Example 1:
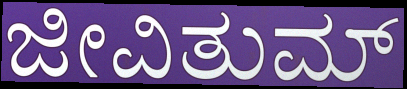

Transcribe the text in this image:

ಜೀವಿತುಮ್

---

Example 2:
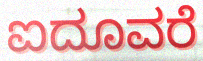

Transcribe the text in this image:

ಐದೂವರೆ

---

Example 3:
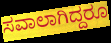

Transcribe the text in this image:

ಸವಾಲಾಗಿದ್ದರೂ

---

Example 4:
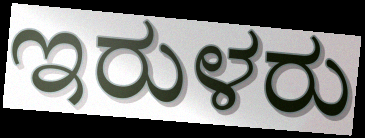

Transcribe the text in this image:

ಇರುಳರು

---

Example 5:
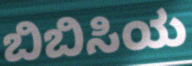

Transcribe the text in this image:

ಬಿಬಿಸಿಯ